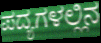
ಪದ್ಯಗಳಲ್ಲಿನ